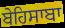
ਬੇਹਿਸਾਬਾ